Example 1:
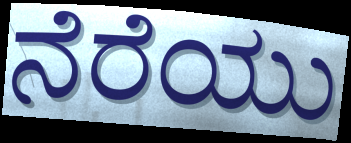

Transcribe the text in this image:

ನೆರೆಯು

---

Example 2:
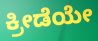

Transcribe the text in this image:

ಕ್ರೀಡೆಯೇ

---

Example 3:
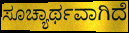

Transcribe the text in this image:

ಸೂಚ್ಯಾರ್ಥವಾಗಿದೆ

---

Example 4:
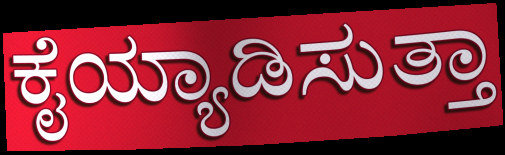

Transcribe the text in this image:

ಕೈಯ್ಯಾಡಿಸುತ್ತಾ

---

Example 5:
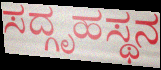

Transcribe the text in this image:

ಸದ್ಗೃಹಸ್ಥನ